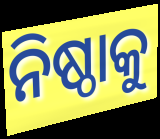
ନିଷ୍ଠାକୁ